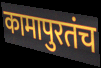
कामापुरतंच